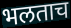
भलताच